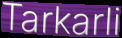
Tarkarli